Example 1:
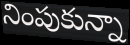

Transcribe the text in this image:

నింపుకున్నా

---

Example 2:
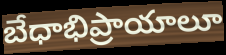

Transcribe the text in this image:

బేధాభిప్రాయాలూ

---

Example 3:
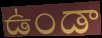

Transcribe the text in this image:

ఉండా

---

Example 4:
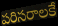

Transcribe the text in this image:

పరిసరాలకే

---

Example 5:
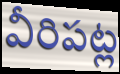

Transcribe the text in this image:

వీరిపట్ల